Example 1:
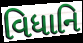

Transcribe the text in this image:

વિધાનિ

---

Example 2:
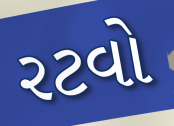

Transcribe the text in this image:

રટવો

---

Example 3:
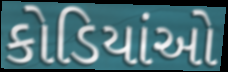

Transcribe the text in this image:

કોડિયાંઓ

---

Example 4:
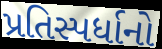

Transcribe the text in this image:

પ્રતિસ્પર્ધાનો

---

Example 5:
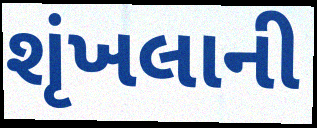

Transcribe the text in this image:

શૃંખલાની